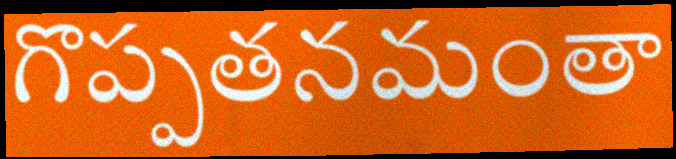
గొప్పతనమంతా